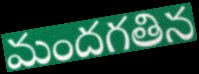
మందగతిన